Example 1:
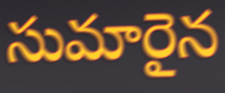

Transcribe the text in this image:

సుమారైన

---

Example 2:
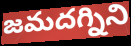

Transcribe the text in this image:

జమదగ్నిని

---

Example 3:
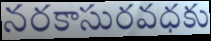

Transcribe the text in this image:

నరకాసురవధకు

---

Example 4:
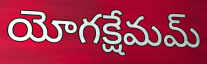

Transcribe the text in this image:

యోగక్షేమమ్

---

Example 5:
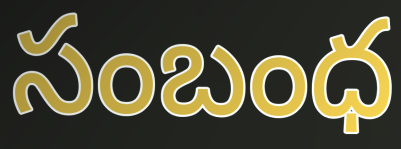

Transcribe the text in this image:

సంబంధ